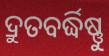
ଦ୍ରୁତବର୍ଦ୍ଧିଷ୍ଣୁ